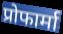
प्रोफार्मा